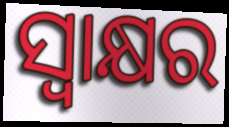
ସ୍ଵାକ୍ଷର